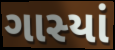
ગાસ્યાં